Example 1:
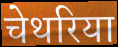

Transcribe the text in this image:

चेथरिया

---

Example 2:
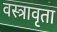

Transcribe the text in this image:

वस्त्रावृता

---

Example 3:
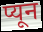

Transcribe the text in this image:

प्यून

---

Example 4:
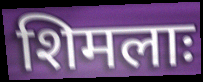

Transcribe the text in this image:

शिमलाः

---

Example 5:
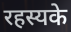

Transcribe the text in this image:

रहस्यके